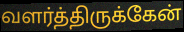
வளர்த்திருக்கேன்